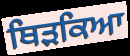
ਥਿੜਕਿਆ